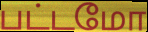
பட்டமோ